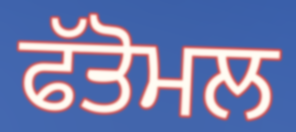
ਫੱਤੋਮਲ